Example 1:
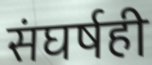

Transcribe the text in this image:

संघर्षही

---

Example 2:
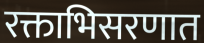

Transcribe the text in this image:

रक्ताभिसरणात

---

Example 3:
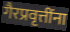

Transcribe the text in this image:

गैरप्रवृत्तींना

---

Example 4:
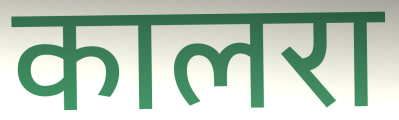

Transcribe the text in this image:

कालरा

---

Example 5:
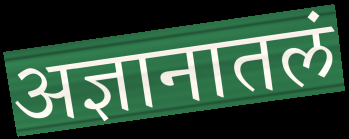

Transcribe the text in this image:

अज्ञानातलं